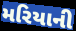
મરિયાની